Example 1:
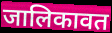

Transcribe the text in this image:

जालिकावत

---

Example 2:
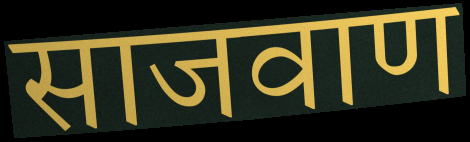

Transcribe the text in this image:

साजवाण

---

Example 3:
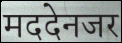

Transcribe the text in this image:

मददेनजर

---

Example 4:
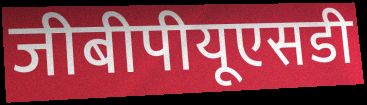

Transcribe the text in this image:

जीबीपीयूएसडी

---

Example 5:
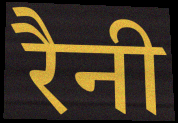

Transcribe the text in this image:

रैनी